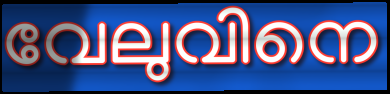
വേലുവിനെ